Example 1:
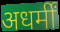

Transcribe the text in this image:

अधर्मीं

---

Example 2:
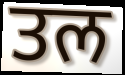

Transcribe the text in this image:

उल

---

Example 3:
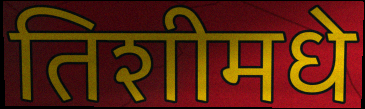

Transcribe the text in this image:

तिशीमधे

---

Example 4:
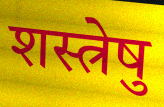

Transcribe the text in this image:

शस्त्रेषु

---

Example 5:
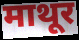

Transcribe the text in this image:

माथूर